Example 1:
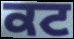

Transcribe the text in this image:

ਕਟ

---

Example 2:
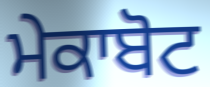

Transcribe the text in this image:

ਮੇਕਾਬੋਟ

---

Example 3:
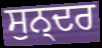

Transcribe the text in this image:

ਸੁਨ੍ਦਰ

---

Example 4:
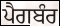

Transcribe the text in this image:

ਪੈਗਬੰਰ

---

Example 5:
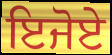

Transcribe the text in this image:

ਇਜੋਏ